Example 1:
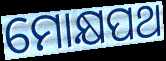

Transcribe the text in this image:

ମୋକ୍ଷପଥ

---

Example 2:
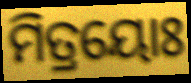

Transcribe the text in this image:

ମିତ୍ରୟୋଃ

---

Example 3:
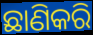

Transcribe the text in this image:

ଛାଣିକରି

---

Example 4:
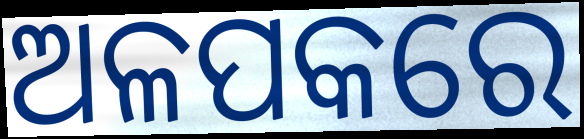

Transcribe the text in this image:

ଅଳପକରେ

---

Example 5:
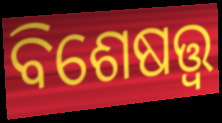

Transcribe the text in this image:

ବିଶେଷତ୍ତ୍ୱ